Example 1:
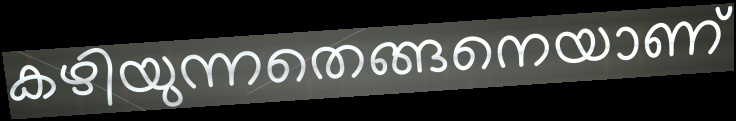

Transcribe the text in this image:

കഴിയുന്നതെങ്ങനെയാണ്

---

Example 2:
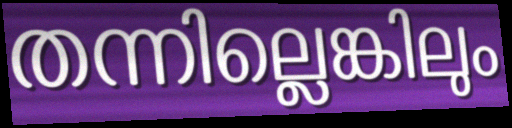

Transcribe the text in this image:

തന്നില്ലെങ്കിലും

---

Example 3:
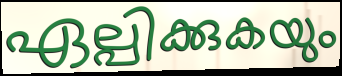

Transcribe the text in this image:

ഏല്പിക്കുകയും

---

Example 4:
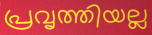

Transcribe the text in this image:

പ്രവൃത്തിയല്ല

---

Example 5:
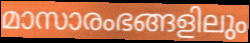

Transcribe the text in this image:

മാസാരംഭങ്ങളിലും